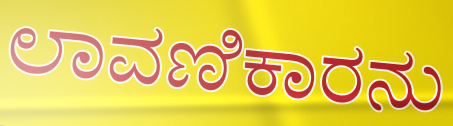
ಲಾವಣಿಕಾರನು